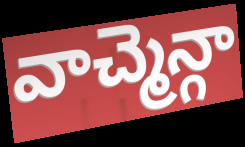
వాచ్మెన్గా